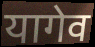
यागेव